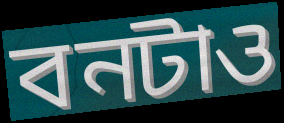
বনটাও